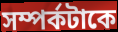
সম্পর্কটাকে